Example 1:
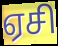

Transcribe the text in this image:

ஏசி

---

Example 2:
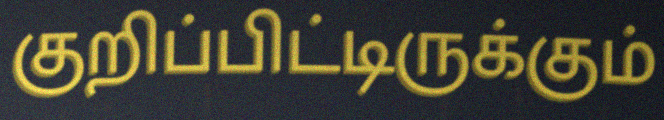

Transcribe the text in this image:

குறிப்பிட்டிருக்கும்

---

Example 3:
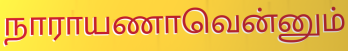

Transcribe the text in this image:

நாராயணாவென்னும்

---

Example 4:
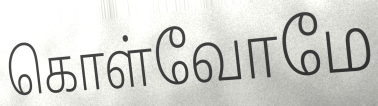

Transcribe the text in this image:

கொள்வோமே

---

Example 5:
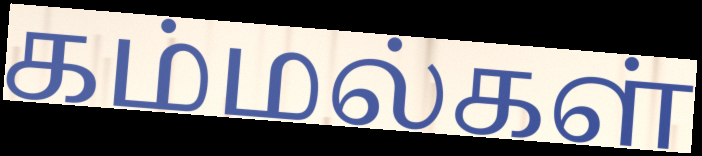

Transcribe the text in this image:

கம்மல்கள்